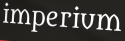
imperium